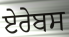
ਏਰੇਬਸ